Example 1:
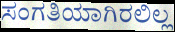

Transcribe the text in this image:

ಸಂಗತಿಯಾಗಿರಲಿಲ್ಲ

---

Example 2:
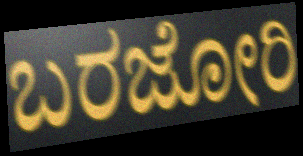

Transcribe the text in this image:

ಬರಜೋರಿ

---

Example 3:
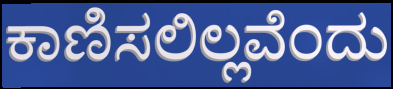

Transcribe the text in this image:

ಕಾಣಿಸಲಿಲ್ಲವೆಂದು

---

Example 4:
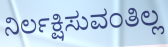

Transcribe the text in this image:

ನಿರ್ಲಕ್ಷಿಸುವಂತಿಲ್ಲ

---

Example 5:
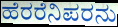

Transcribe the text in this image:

ಹೆರರೆನಿಪರನು